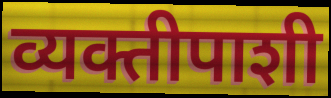
व्यक्तीपाशी